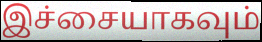
இச்சையாகவும்